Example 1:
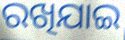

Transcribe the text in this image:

ରଖିଯାଇ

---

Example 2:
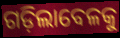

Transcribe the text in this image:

ଗଡ଼ିଲାବେଳକୁ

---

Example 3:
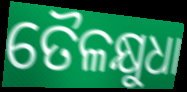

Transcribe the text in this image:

ତୈଳକ୍ଷୁଧା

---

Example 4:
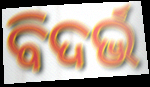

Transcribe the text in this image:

ବିଦର୍ଭ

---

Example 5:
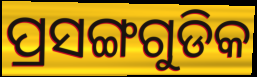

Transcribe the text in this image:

ପ୍ରସଙ୍ଗଗୁଡିକ